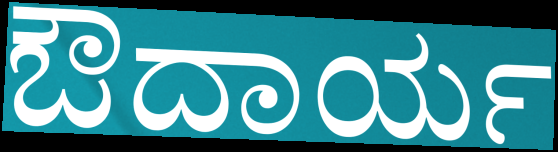
ಔದಾರ್ಯ